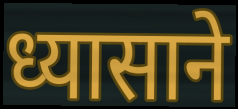
ध्यासाने